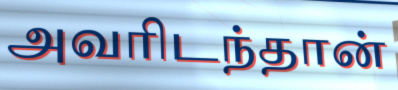
அவரிடந்தான்